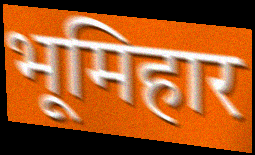
भूमिहार